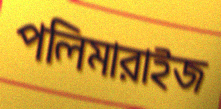
পলিমারাইজ